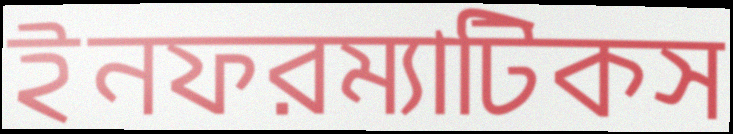
ইনফরম্যাটিকস